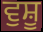
ਵੁਸ਼ੂ